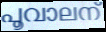
പൂവാലന്